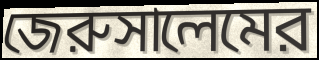
জেরুসালেমের